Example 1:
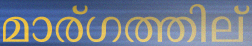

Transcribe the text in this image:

മാര്ഗത്തില്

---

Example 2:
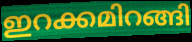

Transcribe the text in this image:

ഇറക്കമിറങ്ങി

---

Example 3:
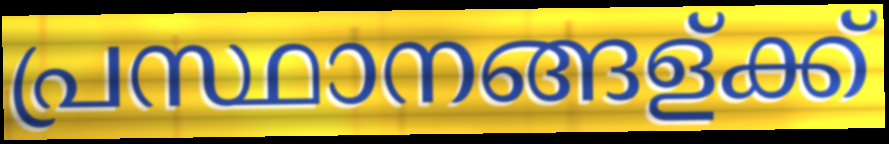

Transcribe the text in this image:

പ്രസ്ഥാനങ്ങള്ക്ക്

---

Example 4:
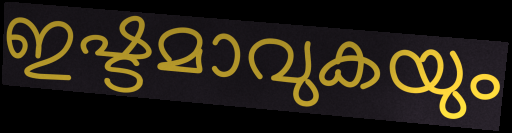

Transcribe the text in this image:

ഇഷ്ടമാവുകയും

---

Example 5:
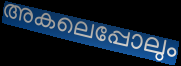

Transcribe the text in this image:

അകലെപ്പോലും